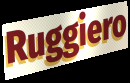
Ruggiero